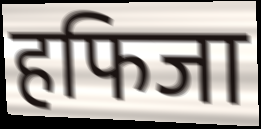
हफिजा